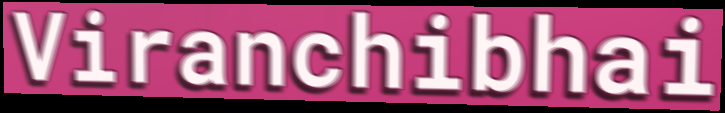
Viranchibhai